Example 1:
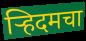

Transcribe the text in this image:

ऱ्हिदमचा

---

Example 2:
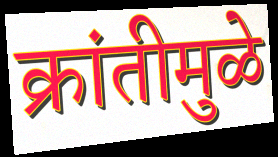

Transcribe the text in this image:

क्रांतीमुळे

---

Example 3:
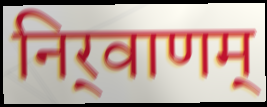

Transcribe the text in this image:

निर्वाणम्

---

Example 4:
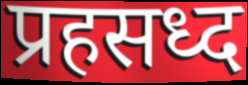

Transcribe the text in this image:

प्रहसध्द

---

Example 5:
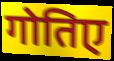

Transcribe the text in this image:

गोतिए